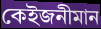
কেইজনীমান